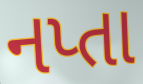
નપ્તા